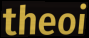
theoi